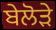
ਬੇਲੋੜੇ